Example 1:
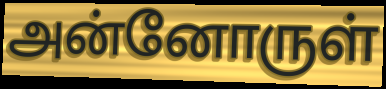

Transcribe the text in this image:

அன்னோருள்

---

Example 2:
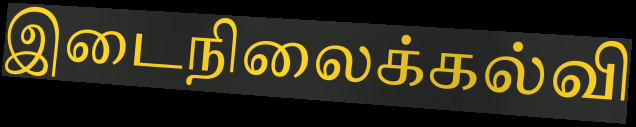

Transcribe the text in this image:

இடைநிலைக்கல்வி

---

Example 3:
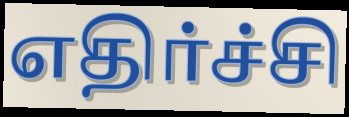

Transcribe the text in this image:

எதிர்ச்சி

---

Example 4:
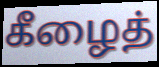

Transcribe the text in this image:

கீழைத்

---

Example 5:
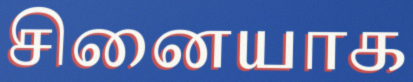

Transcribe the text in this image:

சினையாக